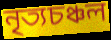
নৃত্যচঞ্চল